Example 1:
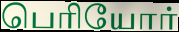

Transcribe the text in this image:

பெரியோர்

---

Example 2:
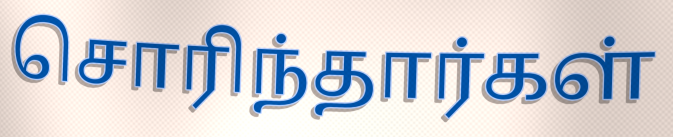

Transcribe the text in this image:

சொரிந்தார்கள்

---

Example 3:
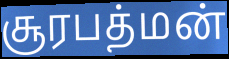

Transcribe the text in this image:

சூரபத்மன்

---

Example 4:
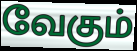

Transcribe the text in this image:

வேகும்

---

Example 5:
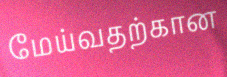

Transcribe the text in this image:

மேய்வதற்கான